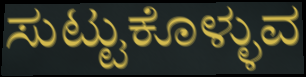
ಸುಟ್ಟುಕೊಳ್ಳುವ